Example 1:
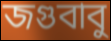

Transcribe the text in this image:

জগুবাবু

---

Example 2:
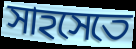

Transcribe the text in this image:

সাহসেতে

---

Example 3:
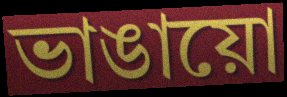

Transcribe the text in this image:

ভাঙায়ো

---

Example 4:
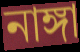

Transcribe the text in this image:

নাঙ্গা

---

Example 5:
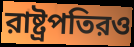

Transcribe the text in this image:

রাষ্ট্রপতিরও